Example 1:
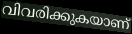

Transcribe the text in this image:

വിവരിക്കുകയാണ്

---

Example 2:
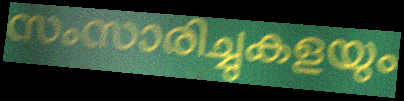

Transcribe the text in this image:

സംസാരിച്ചുകളയും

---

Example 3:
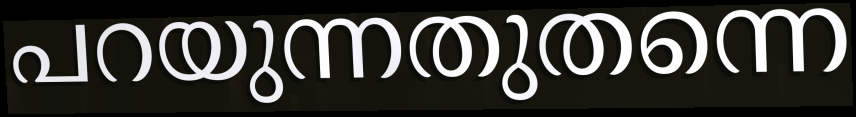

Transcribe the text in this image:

പറയുന്നതുതന്നെ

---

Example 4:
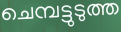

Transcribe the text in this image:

ചെമ്പട്ടുടുത്ത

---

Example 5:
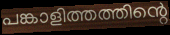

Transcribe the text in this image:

പങ്കാളിത്തത്തിന്റെ